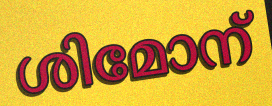
ശിമോന്